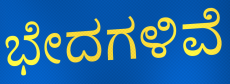
ಭೇದಗಳಿವೆ